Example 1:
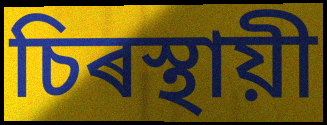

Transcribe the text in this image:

চিৰস্থায়ী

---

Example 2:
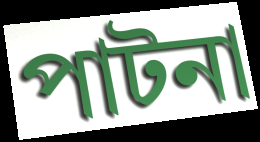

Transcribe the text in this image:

পাটনা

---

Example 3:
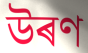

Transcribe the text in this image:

উৰণ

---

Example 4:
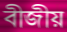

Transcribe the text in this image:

বীজীয়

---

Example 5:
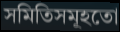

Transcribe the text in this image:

সমিতিসমূহতো